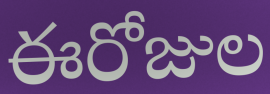
ఈరోజుల